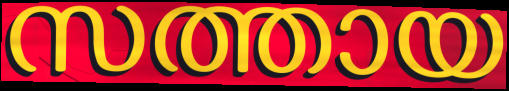
സത്തായ